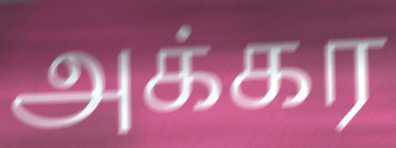
அக்கர